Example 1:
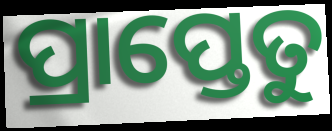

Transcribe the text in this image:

ପ୍ରାପ୍ତେତୁ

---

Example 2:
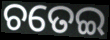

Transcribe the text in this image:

ଚତେଇ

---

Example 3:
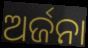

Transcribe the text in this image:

ଅର୍ଜନା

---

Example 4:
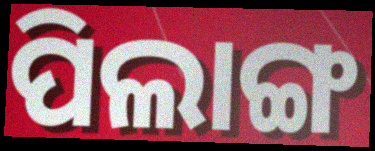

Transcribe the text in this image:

ପିଲାଙ୍ଗ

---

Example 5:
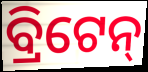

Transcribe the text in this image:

ବ୍ରିଟେନ୍